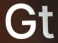
Gt